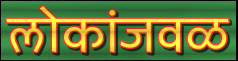
लोकांजवळ